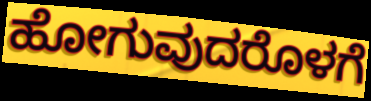
ಹೋಗುವುದರೊಳಗೆ